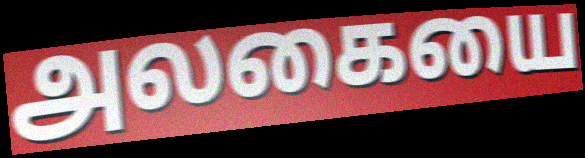
அலகையை